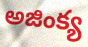
అజింక్య